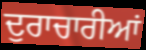
ਦੁਰਾਚਾਰੀਆਂ